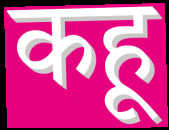
कहू